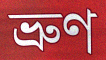
ভ্ৰুণ